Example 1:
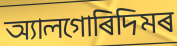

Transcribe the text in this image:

অ্যালগোৰিদিমৰ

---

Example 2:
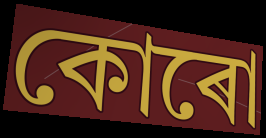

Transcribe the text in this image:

কোৰো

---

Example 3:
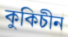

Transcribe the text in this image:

কুকিচীন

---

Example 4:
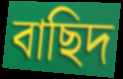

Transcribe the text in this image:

বাছিদ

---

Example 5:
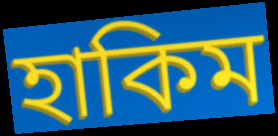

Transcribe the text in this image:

হাকিম